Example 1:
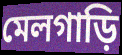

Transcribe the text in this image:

মেলগাড়ি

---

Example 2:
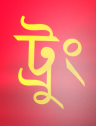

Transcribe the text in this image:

ট্রুং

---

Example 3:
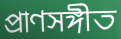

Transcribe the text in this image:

প্রাণসঙ্গীত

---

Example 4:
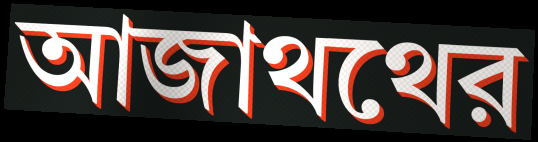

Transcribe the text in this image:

আজাথথের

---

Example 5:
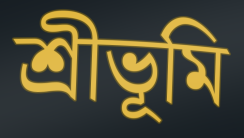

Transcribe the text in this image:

শ্রীভূমি